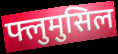
फ्लुमुसिल